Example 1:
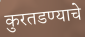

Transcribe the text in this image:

कुरतडण्याचे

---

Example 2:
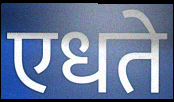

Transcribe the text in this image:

एधते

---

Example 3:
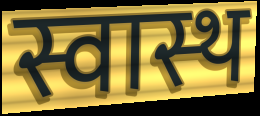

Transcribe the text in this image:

स्वास्थ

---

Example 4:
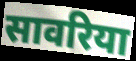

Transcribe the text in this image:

सावरिया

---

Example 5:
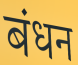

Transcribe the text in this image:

बंधन